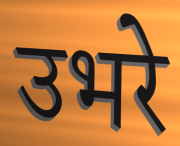
उभरे